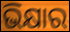
ଭିକ୍ଷାର